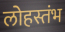
लोहस्तंभ